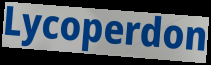
Lycoperdon